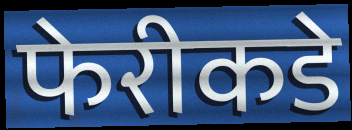
फेरीकडे